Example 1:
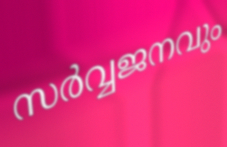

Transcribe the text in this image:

സർവ്വജനവും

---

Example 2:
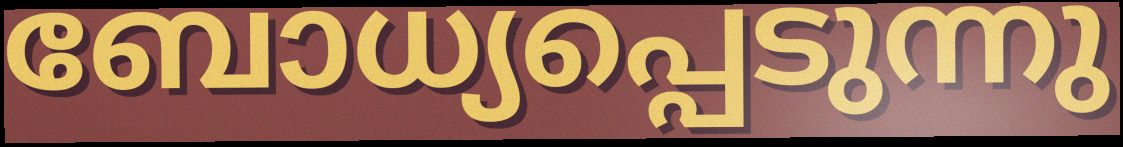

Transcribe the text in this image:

ബോധ്യപ്പെടുന്നു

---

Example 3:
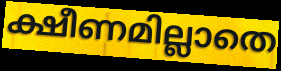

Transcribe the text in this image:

ക്ഷീണമില്ലാതെ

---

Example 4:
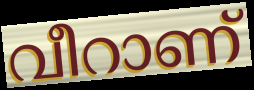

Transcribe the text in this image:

വീറാണ്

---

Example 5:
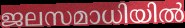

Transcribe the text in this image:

ജലസമാധിയിൽ